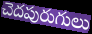
చెదపురుగులు